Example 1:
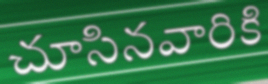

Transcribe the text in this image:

చూసినవారికి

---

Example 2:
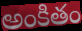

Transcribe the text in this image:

అంకితం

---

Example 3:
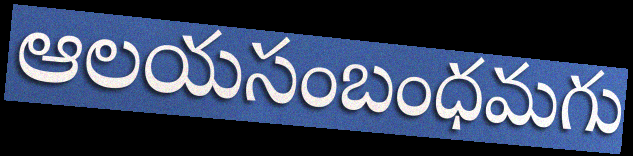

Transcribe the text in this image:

ఆలయసంబంధమగు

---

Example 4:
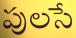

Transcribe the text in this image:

పులసే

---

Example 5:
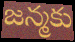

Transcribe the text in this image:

జన్మకు